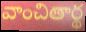
వాంచితార్థ